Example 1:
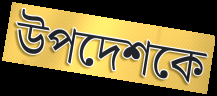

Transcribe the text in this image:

উপদেশকে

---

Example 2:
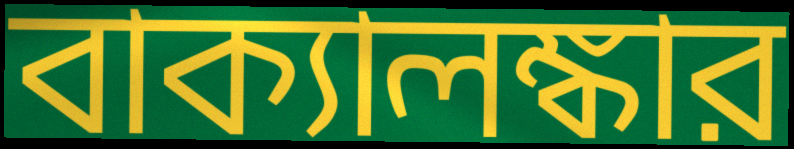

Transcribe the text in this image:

বাক্যালঙ্কার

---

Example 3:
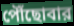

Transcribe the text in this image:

পৌঁছোবার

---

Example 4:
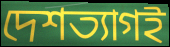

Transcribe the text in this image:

দেশত্যাগই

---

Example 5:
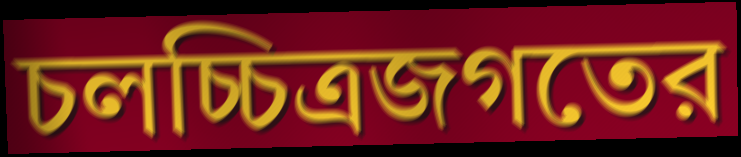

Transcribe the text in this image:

চলচ্চিত্রজগতের